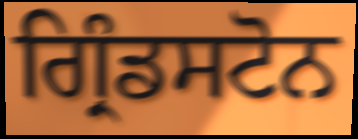
ਗ੍ਰਿੰਡਸਟੋਨ